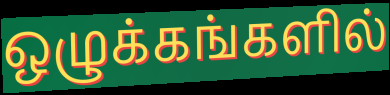
ஒழுக்கங்களில்